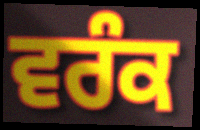
ਵਰੰਕ